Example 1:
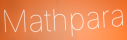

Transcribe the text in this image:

Mathpara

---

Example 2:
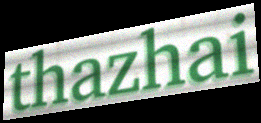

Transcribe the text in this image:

thazhai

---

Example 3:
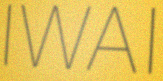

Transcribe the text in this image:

IWAI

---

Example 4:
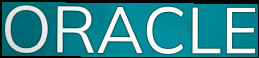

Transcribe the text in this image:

ORACLE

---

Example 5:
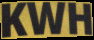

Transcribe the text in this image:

KWH